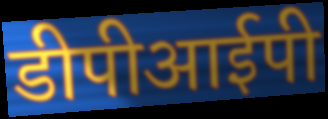
डीपीआईपी